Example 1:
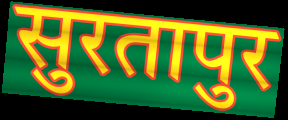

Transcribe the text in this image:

सुरतापुर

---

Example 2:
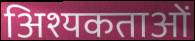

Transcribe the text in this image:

अिश्यकताओं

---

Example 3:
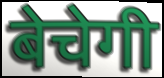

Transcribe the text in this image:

बेचेगी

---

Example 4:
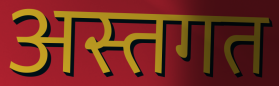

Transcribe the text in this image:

अस्तगत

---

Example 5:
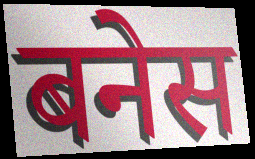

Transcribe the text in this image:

बनेस